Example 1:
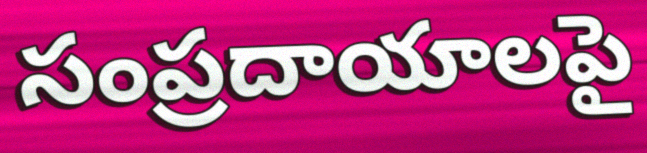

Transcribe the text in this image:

సంప్రదాయాలపై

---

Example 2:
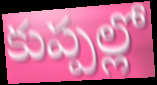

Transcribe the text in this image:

కుప్పల్లో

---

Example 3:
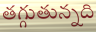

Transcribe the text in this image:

తగ్గుతున్నది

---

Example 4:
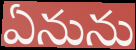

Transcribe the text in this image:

ఏనును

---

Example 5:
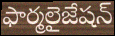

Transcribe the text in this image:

ఫార్మలైజేషన్